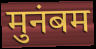
मुनंबम